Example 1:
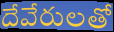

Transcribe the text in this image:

దేవేరులతో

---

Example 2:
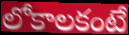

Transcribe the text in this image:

లోకాలకంటే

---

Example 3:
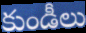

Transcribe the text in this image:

కుండీలు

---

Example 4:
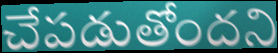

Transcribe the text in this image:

చేపడుతోందని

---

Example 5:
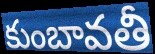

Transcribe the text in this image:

కుంబావతీ